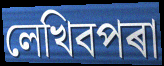
লেখিবপৰা